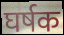
घर्षक